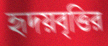
হৃদয়বৃত্তির